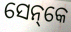
ସେନ୍‌କେ